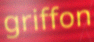
griffon